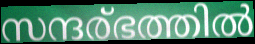
സന്ദര്ഭത്തിൽ